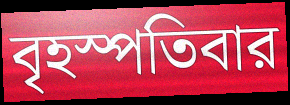
বৃহস্পতিবার